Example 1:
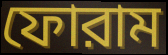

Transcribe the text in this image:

ফোরাম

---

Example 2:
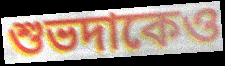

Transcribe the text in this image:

শুভদাকেও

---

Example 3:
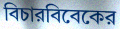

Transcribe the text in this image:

বিচারবিবেকের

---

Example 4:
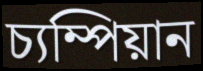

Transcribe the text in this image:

চ্যম্পিয়ান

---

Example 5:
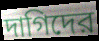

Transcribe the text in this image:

দাগিদের